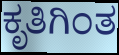
ಕೃತಿಗಿಂತ